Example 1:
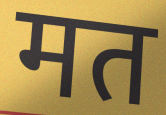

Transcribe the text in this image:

मत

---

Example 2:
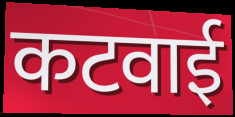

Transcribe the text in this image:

कटवाई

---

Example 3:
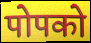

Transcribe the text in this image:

पोपको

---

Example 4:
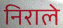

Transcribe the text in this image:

निराले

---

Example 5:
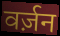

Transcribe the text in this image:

वर्ज़न